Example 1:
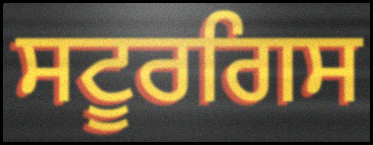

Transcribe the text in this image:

ਸਟੂਰਗਿਸ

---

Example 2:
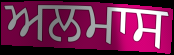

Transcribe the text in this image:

ਅਲਮਾਸ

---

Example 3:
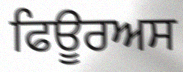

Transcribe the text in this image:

ਫਿਊਰਅਸ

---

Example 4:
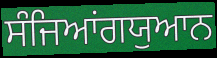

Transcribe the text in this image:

ਸੰਜਿਆਂਗਯੁਆਨ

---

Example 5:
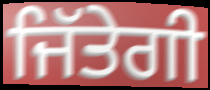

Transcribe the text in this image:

ਜਿੱਤੇਗੀ